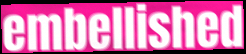
embellished